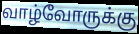
வாழ்வோருக்கு